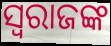
ସ୍ୱରାଜଙ୍କ